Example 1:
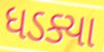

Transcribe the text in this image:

ધડક્યા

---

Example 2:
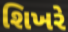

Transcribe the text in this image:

શિખરે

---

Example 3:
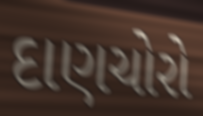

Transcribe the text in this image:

દાણચોરો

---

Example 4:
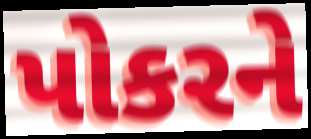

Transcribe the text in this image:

પોકરને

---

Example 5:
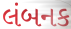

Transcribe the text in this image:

લંબનક